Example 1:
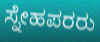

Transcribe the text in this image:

ಸ್ನೇಹಪರರು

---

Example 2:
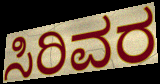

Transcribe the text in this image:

ಸಿರಿವರ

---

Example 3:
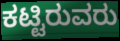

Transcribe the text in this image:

ಕಟ್ಟಿರುವರು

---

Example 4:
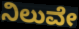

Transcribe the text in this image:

ನಿಲುವೇ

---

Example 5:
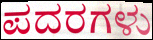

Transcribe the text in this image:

ಪದರಗಳು